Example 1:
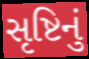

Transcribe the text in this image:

સૃષ્ટિનું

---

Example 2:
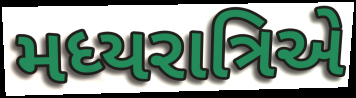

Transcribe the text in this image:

મધ્યરાત્રિએ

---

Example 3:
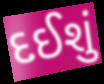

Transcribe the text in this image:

દઈશું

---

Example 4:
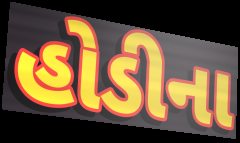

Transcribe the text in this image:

હોડીના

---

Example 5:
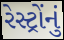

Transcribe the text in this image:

રેસ્ટ્રોંનું